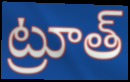
ట్రూత్